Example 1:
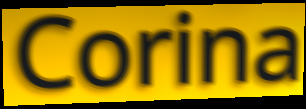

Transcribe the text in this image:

Corina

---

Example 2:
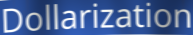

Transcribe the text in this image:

Dollarization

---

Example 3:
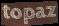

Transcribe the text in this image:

topaz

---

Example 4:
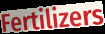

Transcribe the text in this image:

Fertilizers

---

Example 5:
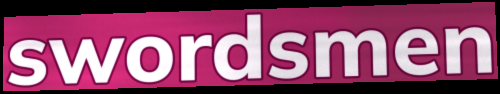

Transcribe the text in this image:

swordsmen